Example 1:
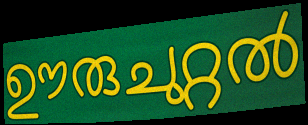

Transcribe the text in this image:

ഊരുചുറ്റൽ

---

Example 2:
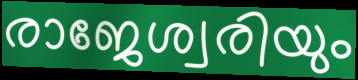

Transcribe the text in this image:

രാജേശ്വരിയും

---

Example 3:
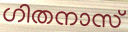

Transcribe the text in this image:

ഗിതനാസ്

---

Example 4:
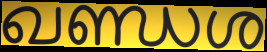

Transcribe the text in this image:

ഖണ്ഡശ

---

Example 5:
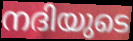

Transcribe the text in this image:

നദിയുടെ